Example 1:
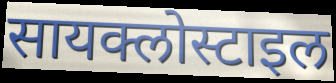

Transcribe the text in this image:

सायक्लोस्टाइल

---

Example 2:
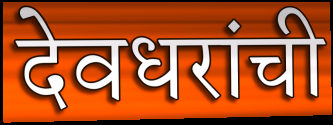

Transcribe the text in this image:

देवधरांची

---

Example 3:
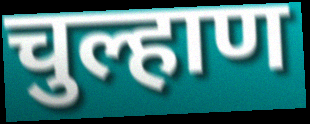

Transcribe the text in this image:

चुल्हाण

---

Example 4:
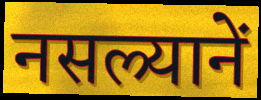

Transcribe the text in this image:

नसल्यानें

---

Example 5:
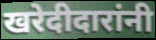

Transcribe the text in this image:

खरेदीदारांनी